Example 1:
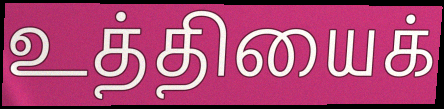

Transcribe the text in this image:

உத்தியைக்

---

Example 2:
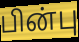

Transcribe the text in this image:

பின்பு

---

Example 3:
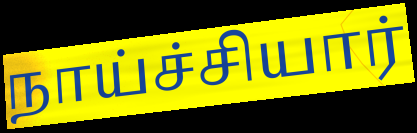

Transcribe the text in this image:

நாய்ச்சியார்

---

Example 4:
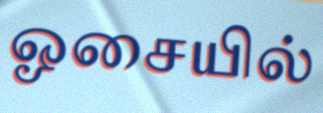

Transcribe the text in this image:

ஓசையில்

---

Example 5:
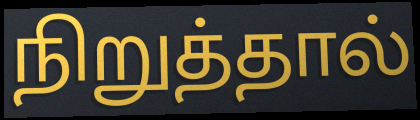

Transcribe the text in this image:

நிறுத்தால்